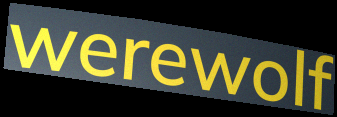
werewolf